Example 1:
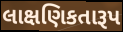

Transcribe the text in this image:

લાક્ષણિકતારૂપ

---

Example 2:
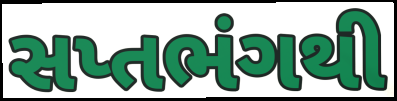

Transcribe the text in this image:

સપ્તભંગથી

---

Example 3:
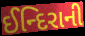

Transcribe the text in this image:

ઈન્દિરાની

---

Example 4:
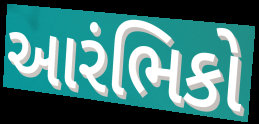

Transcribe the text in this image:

આરંભિકો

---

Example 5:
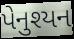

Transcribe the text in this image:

પેનુશ્યન